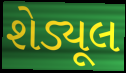
શેડ્યૂલ